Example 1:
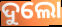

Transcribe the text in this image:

ଦୁଲୋ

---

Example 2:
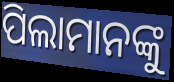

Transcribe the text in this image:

ପିଲାମାନଙ୍କୁ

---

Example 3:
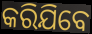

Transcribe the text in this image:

କରିଯିବେ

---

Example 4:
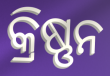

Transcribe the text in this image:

କ୍ରିଷ୍ଣନ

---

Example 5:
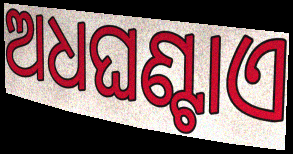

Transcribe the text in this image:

ଅଧଘଣ୍ଟାଏ